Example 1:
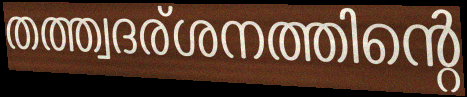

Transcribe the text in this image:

തത്ത്വദര്ശനത്തിന്റെ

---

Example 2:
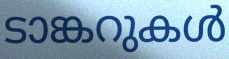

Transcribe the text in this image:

ടാങ്കറുകൾ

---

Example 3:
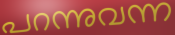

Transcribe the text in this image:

പറന്നുവന്ന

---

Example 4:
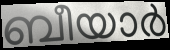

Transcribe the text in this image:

ബീയാർ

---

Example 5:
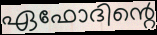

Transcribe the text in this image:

ഏഫോദിന്റെ